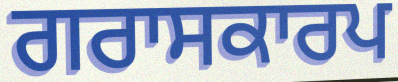
ਗਰਾਸਕਾਰਪ